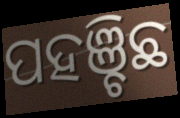
ପହଞ୍ଚିଛ